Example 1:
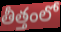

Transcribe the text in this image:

తీత్తంలో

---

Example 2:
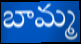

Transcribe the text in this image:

బామ్మ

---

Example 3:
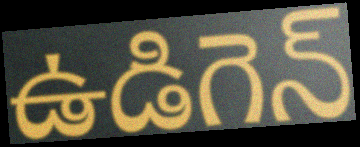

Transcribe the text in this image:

ఉడిగెన్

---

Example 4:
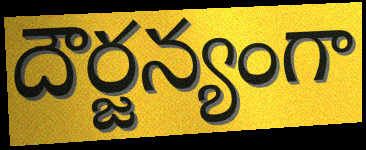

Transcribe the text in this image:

దౌర్జన్యంగా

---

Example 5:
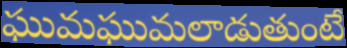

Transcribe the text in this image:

ఘుమఘుమలాడుతుంటే